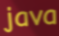
java